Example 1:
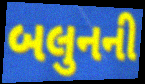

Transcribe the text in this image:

બલુનની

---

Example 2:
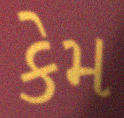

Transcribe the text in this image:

કેમ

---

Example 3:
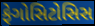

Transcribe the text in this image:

ફેગોસિટોસિસ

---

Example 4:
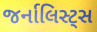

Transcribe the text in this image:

જર્નાલિસ્ટ્સ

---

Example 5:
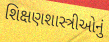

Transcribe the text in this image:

શિક્ષણશાસ્ત્રીઓનું